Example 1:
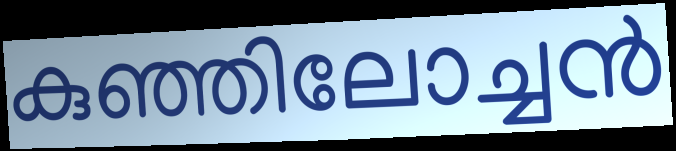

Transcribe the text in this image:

കുഞ്ഞിലോച്ചൻ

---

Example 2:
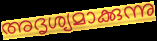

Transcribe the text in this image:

അദൃശ്യമാക്കുന്നു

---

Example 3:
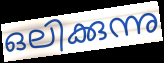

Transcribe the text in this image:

ഒലിക്കുന്നു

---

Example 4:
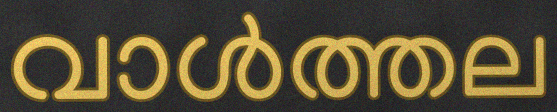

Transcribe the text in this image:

വാൾത്തല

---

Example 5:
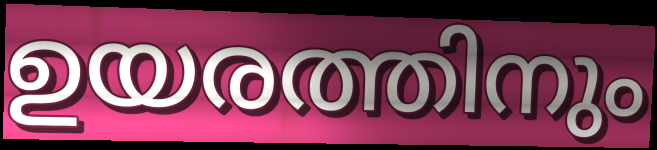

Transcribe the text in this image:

ഉയരത്തിനും